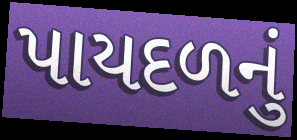
પાયદળનું